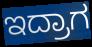
ಇದ್ರಾಗ